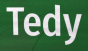
Tedy